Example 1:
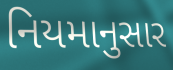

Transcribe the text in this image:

નિયમાનુસાર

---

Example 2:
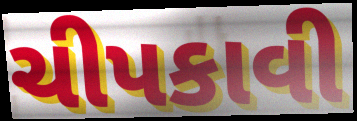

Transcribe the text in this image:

ચીપકાવી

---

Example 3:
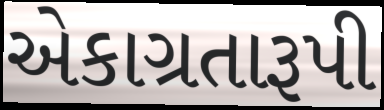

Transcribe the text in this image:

એકાગ્રતારૂપી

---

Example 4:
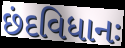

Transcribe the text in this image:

છંદવિધાનઃ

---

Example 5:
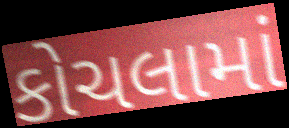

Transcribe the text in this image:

કોચલામાં